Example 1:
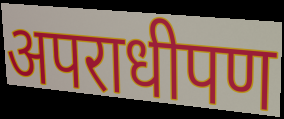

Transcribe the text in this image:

अपराधीपण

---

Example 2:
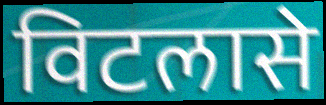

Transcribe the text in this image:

विटलासे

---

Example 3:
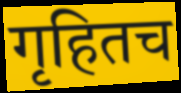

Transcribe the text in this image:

गृहितच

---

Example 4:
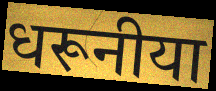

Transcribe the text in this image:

धरूनीया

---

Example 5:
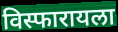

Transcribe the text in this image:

विस्फारायला